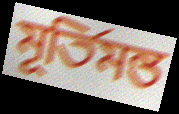
মূর্তিমন্ত